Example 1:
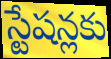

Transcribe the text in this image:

స్టేషన్లకు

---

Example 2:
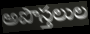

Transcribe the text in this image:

అపొస్తలుల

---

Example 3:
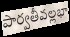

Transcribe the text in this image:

పార్వతీవల్లభా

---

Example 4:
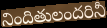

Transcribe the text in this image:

నిందితులందరినీ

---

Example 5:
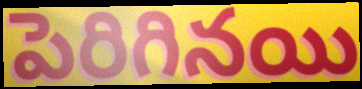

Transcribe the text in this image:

పెరిగినయి